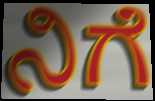
ನಿಗೆ